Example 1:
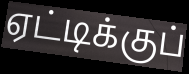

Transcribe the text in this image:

ஏட்டிக்குப்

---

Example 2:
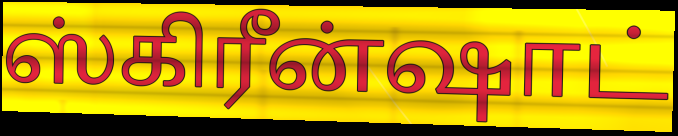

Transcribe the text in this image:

ஸ்கிரீன்ஷாட்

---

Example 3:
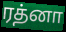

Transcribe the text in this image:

ரத்னா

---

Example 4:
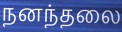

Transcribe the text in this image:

நனந்தலை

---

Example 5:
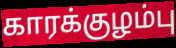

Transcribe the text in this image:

காரக்குழம்பு